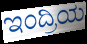
ಇಂದ್ರಿಯ